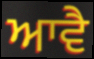
ਆਵੈ